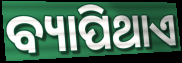
ବ୍ୟାପିଥାଏ